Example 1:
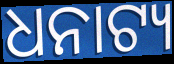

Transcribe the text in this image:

ଧନାଟ୍ୟ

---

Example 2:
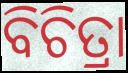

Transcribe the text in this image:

ବିଚିତ୍ରା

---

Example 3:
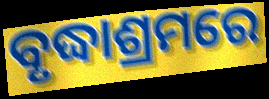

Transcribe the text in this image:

ବୃଦ୍ଧାଶ୍ରମରେ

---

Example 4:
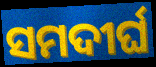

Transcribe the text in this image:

ସମଦୀର୍ଘ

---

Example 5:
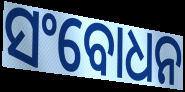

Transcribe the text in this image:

ସଂବୋଧନ